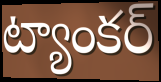
ట్యాంకర్